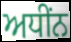
ਅਧੀਂਨ